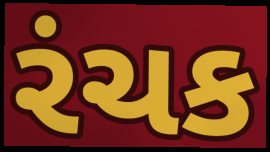
રંચક